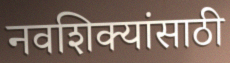
नवशिक्यांसाठी